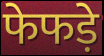
फेफड़े